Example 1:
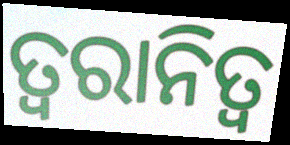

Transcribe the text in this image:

ତ୍ୱରାନିତ୍ଵ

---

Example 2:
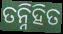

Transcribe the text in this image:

ତନ୍ନିହିତ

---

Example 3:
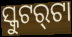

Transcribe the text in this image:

ସ୍କୁଟର୍‌ଟା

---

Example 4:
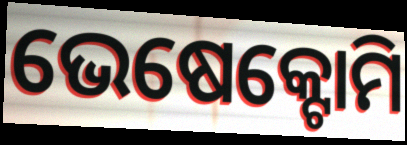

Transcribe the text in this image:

ଭେଷେକ୍ଟୋମି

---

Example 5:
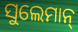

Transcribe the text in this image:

ସୁଲେମାନ୍